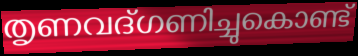
തൃണവദ്ഗണിച്ചുകൊണ്ട്